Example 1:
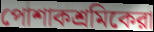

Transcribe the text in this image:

পোশাকশ্রমিকেরা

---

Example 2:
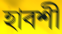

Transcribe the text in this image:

হাবশী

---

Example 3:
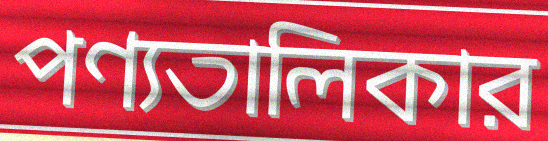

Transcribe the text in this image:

পণ্যতালিকার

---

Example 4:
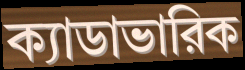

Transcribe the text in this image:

ক্যাডাভারিক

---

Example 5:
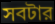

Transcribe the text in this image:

সবটার